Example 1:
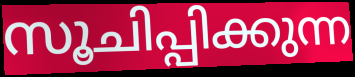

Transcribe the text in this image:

സൂചിപ്പിക്കുന്ന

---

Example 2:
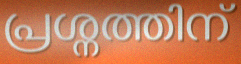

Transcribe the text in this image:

പ്രശ്നത്തിന്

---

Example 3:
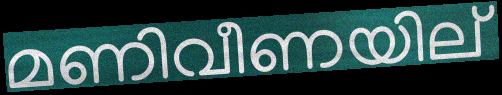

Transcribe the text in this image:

മണിവീണയില്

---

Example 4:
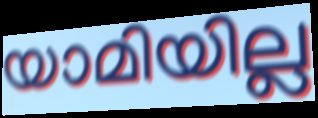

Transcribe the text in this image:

യാമിയില്ല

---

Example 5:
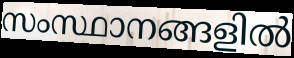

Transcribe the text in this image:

സംസ്ഥാനങ്ങളിൽ